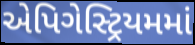
એપિગેસ્ટ્રિયમમાં